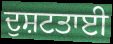
ਦੁਸ਼ਟਤਾਈ